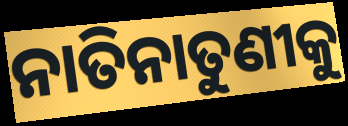
ନାତିନାତୁଣୀକୁ